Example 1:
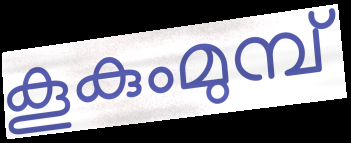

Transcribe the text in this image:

കൂകുംമുമ്പ്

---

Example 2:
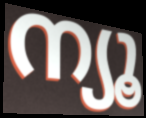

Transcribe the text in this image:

ന്യൂ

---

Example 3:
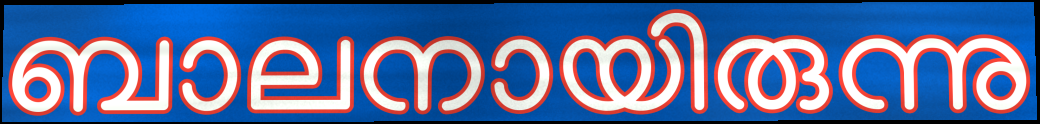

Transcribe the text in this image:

ബാലനായിരുന്നു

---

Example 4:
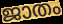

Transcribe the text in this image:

ജാതം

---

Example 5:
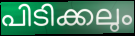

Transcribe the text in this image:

പിടിക്കലും